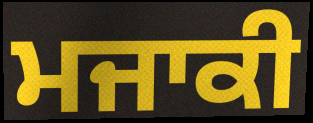
ਮਜਾਕੀ